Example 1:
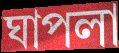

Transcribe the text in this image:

ঘাপলা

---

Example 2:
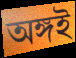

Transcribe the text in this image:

অঙ্গই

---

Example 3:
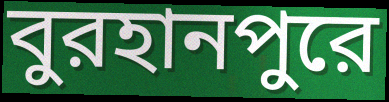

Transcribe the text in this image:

বুরহানপুরে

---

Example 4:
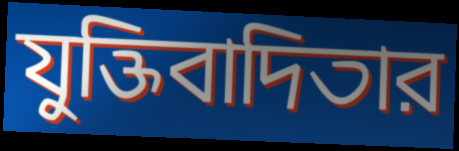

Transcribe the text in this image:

যুক্তিবাদিতার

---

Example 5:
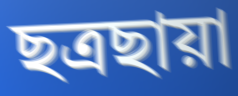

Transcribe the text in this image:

ছত্রছায়া